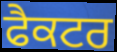
ਫੈਕਟਰ